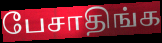
பேசாதிங்க